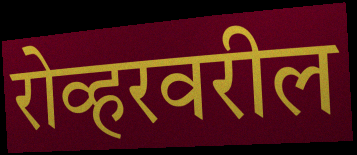
रोव्हरवरील